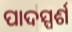
ପାଦସ୍ପର୍ଶ